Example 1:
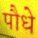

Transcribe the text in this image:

पौधे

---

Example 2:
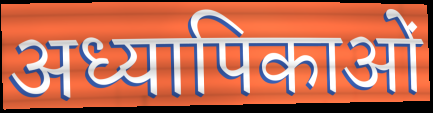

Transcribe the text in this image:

अध्यापिकाओं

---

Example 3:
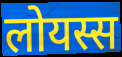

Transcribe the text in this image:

लोयस्स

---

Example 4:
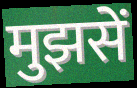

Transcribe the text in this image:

मुझसें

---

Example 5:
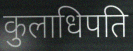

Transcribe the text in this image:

कुलाधिपति